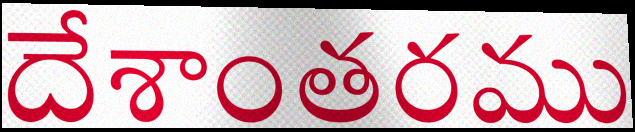
దేశాంతరము